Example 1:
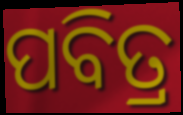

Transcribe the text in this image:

ପବିତ୍ର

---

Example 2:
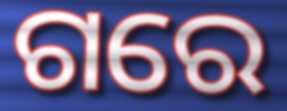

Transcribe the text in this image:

ଗରେ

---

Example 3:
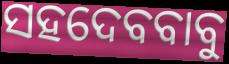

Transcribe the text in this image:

ସହଦେବବାବୁ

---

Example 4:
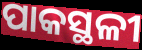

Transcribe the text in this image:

ପାକସ୍ଥଳୀ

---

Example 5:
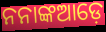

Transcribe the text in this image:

ନନାଙ୍କଆଡ଼େ